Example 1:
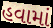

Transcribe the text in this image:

હવામાં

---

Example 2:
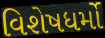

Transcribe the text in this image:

વિશેષધર્મો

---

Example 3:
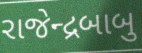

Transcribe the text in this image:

રાજેન્દ્રબાબુ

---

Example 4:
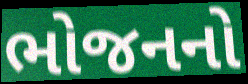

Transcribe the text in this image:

ભોજનનો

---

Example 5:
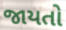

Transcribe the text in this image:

જાયતો